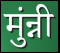
मुंन्नी